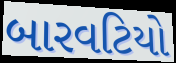
બારવટિયો